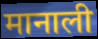
मानाली